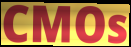
CMOs